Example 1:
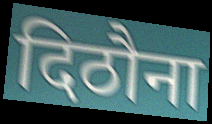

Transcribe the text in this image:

दिठौना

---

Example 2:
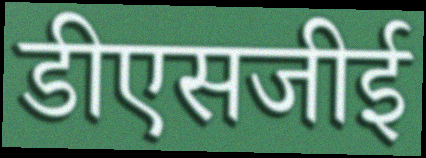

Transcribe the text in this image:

डीएसजीई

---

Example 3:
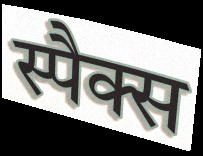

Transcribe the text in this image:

स्पैक्स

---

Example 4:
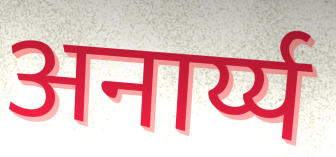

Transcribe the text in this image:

अनार्य्य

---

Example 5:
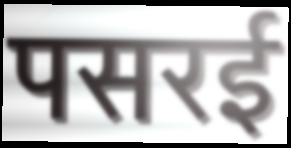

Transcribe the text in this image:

पसरई